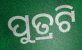
ପୁତ୍ରଟି